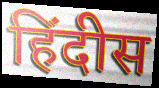
हिंदीस